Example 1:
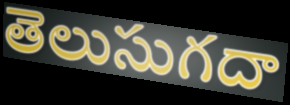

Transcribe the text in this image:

తెలుసుగదా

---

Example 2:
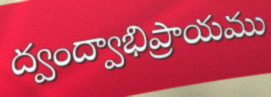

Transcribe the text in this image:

ద్వంద్వాభిప్రాయము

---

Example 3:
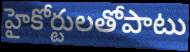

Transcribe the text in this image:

హైకోర్టులతోపాటు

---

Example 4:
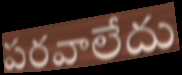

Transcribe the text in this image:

పరవాలేదు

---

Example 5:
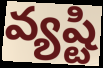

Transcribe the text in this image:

వ్యష్టి